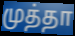
முத்தா